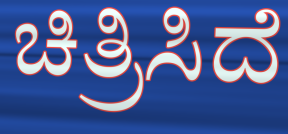
ಚಿತ್ರಿಸಿದೆ